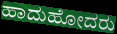
ಹಾದುಹೋದರು